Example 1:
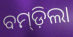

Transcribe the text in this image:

ବମ୍‍ଡ଼ିଲା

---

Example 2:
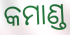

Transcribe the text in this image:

କମାଣ୍ଡ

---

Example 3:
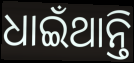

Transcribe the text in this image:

ଧାଇଁଥାନ୍ତି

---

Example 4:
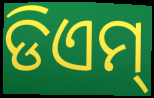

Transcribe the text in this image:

ଡିଏମ୍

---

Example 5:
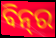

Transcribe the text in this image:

ବିନ୍‍ର